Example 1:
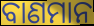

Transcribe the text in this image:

ବାଣମାନ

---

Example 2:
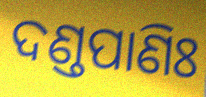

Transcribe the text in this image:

ଦଣ୍ଡପାଣିଃ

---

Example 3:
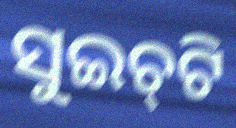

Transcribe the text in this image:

ସୁଇଚ୍‌ଟି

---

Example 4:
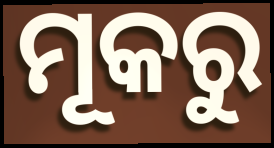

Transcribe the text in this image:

ମୂକରୁ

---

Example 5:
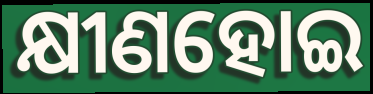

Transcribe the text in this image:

କ୍ଷୀଣହୋଇ